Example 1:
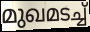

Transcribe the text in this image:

മുഖമടച്ച്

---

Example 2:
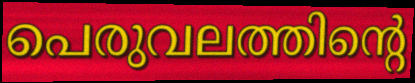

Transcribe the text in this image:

പെരുവലത്തിന്റെ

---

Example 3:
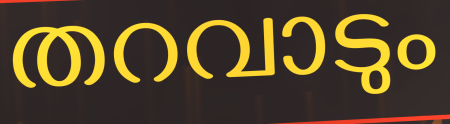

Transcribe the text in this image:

തറവാടും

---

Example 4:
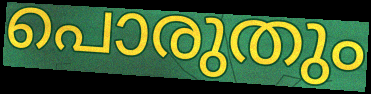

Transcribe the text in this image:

പൊരുതും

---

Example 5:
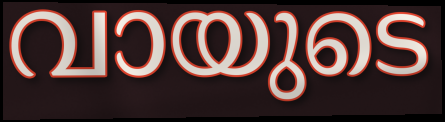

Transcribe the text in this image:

വായുടെ